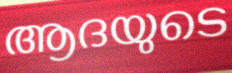
ആദയുടെ